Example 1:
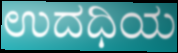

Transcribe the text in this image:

ಉದಧಿಯ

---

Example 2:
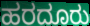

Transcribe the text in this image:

ಹರದೂರು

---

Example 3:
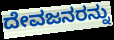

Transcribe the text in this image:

ದೇವಜನರನ್ನು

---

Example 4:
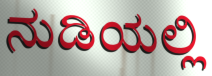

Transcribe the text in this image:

ನುಡಿಯಲ್ಲಿ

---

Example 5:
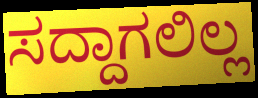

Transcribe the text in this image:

ಸದ್ದಾಗಲಿಲ್ಲ